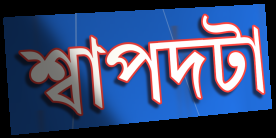
শ্বাপদটা